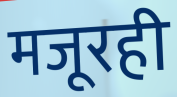
मजूरही